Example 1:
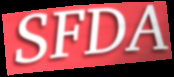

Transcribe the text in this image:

SFDA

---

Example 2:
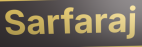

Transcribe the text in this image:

Sarfaraj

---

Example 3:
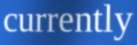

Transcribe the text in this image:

currently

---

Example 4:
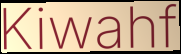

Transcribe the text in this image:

Kiwahf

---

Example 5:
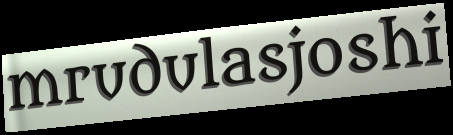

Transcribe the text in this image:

mrudulasjoshi